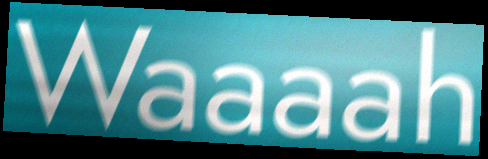
Waaaah